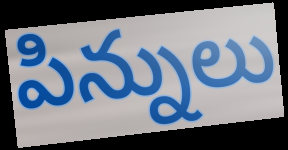
పిన్నులు